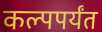
कल्पपर्यंत